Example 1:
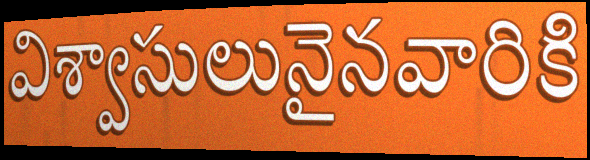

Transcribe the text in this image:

విశ్వాసులునైనవారికి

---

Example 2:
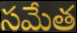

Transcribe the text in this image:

సమేత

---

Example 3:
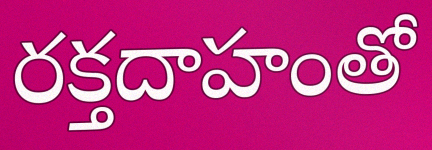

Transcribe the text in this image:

రక్తదాహంతో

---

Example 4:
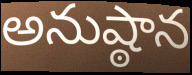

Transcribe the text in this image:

అనుష్ఠాన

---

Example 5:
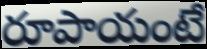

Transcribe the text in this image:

రూపాయంటే